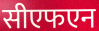
सीएफएन